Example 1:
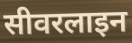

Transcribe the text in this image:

सीवरलाइन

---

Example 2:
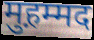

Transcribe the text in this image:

मुह़म्मद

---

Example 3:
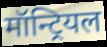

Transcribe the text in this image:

मॉन्ट्रियल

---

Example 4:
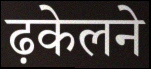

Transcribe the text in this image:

ढ़केलने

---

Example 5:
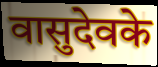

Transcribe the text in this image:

वासुदेवके